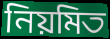
নিয়মিত